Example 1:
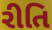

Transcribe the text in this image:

રીતિ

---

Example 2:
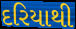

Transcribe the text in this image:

દરિયાથી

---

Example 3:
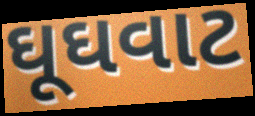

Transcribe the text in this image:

ઘૂઘવાટ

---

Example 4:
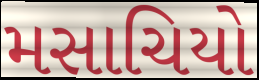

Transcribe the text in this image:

મસાચિયો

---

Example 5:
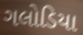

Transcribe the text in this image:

ગલોડિયા